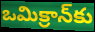
ఒమిక్రాన్‌కు